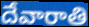
దేవారాతి